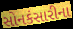
સોનકંસારીના